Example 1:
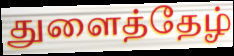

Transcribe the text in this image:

துளைத்தேழ்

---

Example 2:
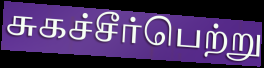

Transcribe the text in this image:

சுகச்சீர்பெற்று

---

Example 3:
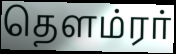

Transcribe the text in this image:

தௌம்ரர்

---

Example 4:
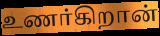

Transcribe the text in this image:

உணர்கிறான்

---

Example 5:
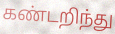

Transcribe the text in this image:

கண்டறிந்து